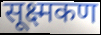
सूक्ष्मकण